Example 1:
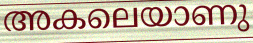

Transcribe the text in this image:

അകലെയാണു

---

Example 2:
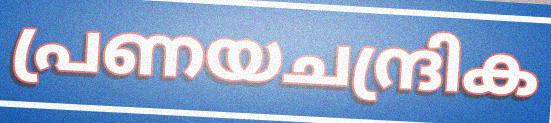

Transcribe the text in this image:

പ്രണയചന്ദ്രിക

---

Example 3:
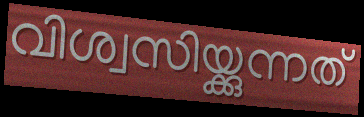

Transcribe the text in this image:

വിശ്വസിയ്ക്കുന്നത്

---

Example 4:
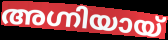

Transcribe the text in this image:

അഗ്നിയായ്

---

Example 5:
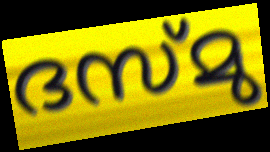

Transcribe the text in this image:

ദസ്മു